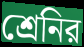
শ্রেনির